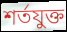
শর্তযুক্ত